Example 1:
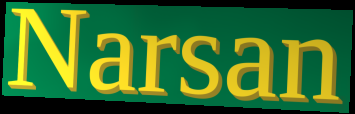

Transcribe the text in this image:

Narsan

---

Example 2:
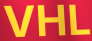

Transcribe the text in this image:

VHL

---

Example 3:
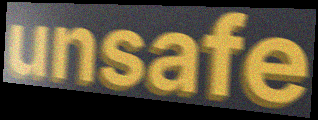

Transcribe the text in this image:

unsafe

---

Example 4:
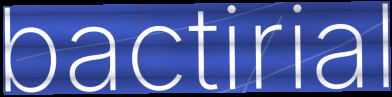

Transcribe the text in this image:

bactirial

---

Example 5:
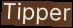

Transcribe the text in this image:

Tipper